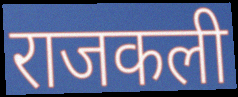
राजकली